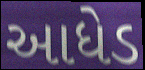
આધેડ